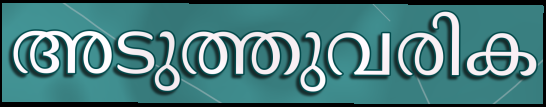
അടുത്തുവരിക